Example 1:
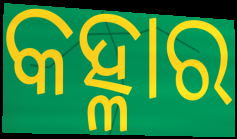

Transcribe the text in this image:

କହ୍ଳାର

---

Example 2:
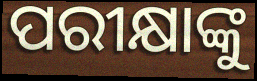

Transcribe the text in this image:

ପରୀକ୍ଷାଙ୍କୁ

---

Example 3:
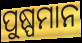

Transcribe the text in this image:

ପୁଷ୍ପମାନ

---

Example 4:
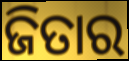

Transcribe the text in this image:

ଜିତାର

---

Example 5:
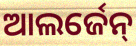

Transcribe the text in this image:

ଆଲର୍ଜେନ୍